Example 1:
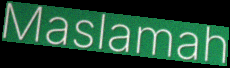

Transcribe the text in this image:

Maslamah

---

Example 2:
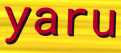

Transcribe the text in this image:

yaru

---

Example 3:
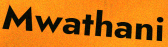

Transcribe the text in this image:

Mwathani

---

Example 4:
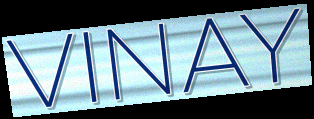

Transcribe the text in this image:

VINAY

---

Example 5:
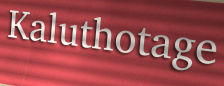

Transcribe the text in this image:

Kaluthotage